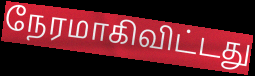
நேரமாகிவிட்டது